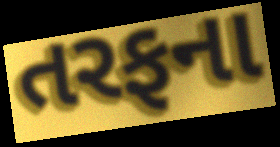
તરફના